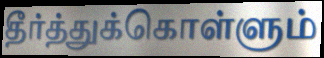
தீர்த்துக்கொள்ளும்